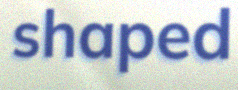
shaped